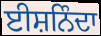
ਈਸ਼ਨਿੰਦਾ